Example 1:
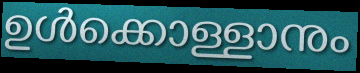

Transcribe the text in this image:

ഉൾക്കൊള്ളാനും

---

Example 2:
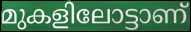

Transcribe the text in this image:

മുകളിലോട്ടാണ്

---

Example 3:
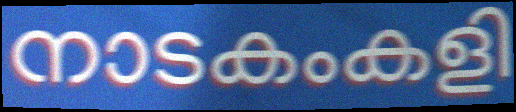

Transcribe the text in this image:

നാടകംകളി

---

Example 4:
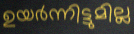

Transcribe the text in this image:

ഉയർന്നിട്ടുമില്ല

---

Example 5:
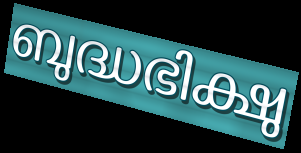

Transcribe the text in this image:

ബുദ്ധഭിക്ഷു